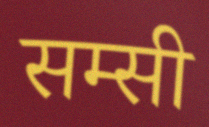
सम्सी